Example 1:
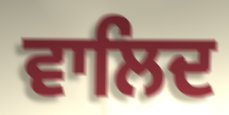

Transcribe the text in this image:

ਵਾਲਿਦ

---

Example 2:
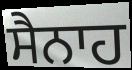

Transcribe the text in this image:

ਸੈਨਾਹ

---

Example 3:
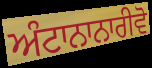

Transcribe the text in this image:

ਅੰਟਾਨਾਨਾਰੀਵੋ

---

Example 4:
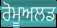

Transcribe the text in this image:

ਰੋਮੂਅਲਡ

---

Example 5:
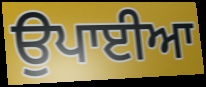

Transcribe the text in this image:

ਉਪਾਈਆ